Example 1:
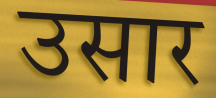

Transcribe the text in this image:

उसार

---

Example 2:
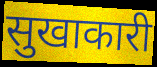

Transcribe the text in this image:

सुखाकारी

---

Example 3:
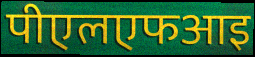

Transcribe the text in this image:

पीएलएफआइ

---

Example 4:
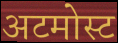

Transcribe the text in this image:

अटमोस्ट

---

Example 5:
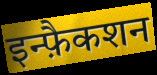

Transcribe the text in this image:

इन्फ़ैकशन